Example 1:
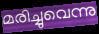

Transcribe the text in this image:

മരിച്ചുവെന്നു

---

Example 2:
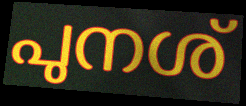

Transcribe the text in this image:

പുനശ്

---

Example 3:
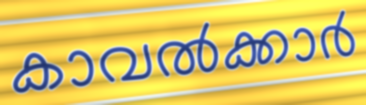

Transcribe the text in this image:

കാവൽക്കാർ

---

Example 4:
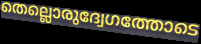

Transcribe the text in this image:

തെല്ലൊരുദ്വേഗത്തോടെ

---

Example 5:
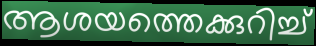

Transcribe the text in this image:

ആശയത്തെക്കുറിച്ച്